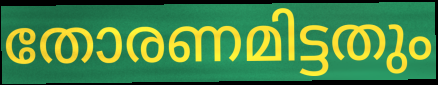
തോരണമിട്ടതും